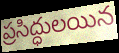
ప్రసిద్ధులయిన